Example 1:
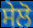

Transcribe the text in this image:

ਸੇਲੋ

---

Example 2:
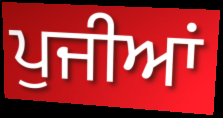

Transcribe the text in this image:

ਪੁਜੀਆਂ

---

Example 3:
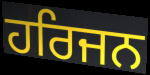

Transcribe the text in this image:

ਹਰਿਜਨ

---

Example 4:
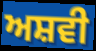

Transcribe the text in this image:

ਅਸ਼ਵੀ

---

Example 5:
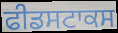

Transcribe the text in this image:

ਫੀਡਸਟਾਕਸ